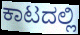
ಕಾಟದಲ್ಲಿ